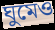
ঘুমেও